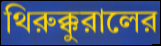
থিরুক্কুরালের